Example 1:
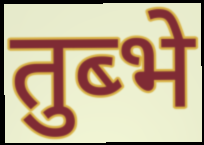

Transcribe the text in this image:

तुब्भे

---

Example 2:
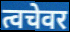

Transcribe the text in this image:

त्वचेवर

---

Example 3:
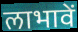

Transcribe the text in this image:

लाभावें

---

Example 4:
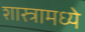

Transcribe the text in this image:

शास्त्रामध्ये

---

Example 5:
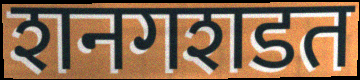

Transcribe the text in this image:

शनगशडत